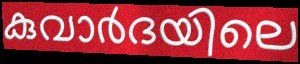
കുവാർദയിലെ